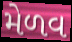
મેળવ